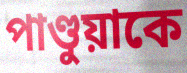
পাণ্ডুয়াকে